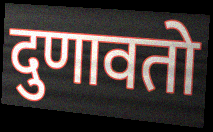
दुणावतो